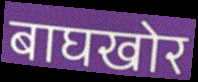
बाघखोर